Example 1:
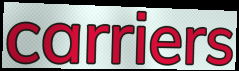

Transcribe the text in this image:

carriers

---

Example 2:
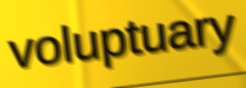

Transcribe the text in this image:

voluptuary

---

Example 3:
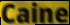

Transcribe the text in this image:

Caine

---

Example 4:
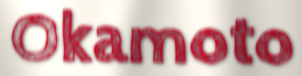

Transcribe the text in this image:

Okamoto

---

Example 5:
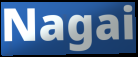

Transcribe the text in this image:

Nagai